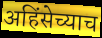
अहिंसेच्याच